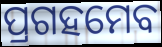
ପ୍ରଗହମେବ